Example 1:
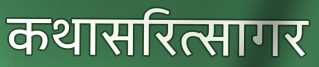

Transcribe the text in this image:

कथासरित्सागर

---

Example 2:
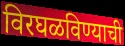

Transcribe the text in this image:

विरघळविण्याची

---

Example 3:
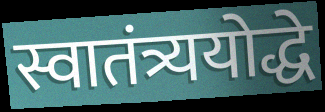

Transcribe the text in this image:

स्वातंत्र्ययोद्धे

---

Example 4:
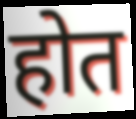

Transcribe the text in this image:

होत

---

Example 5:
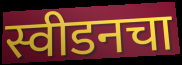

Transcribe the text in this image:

स्वीडनचा